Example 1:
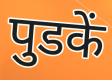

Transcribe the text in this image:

पुडकें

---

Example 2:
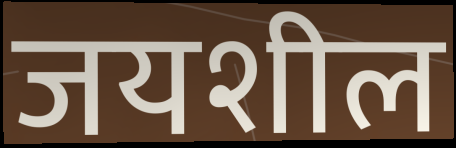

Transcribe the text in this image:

जयशील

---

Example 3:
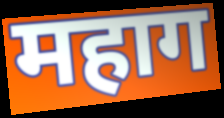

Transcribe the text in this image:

महाग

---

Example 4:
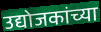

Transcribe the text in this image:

उद्योजकांच्या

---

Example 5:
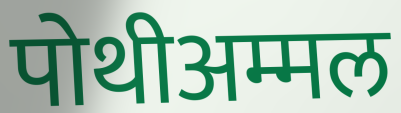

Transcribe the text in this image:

पोथीअम्मल